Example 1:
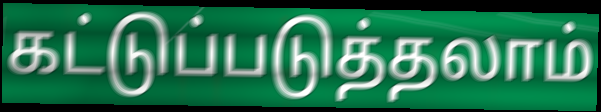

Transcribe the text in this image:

கட்டுப்படுத்தலாம்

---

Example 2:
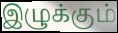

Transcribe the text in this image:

இழுக்கும்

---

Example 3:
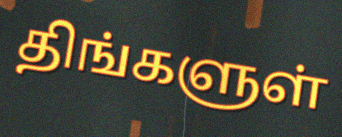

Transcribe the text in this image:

திங்களுள்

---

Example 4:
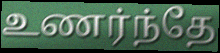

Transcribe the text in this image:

உணர்ந்தே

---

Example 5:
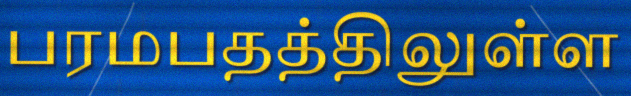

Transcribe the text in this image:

பரமபதத்திலுள்ள